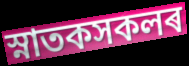
স্নাতকসকলৰ